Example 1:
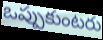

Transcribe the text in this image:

ఒప్పుకుంటరు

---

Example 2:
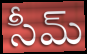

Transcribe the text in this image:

సీమ్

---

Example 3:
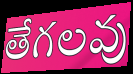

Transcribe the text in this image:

తేగలవు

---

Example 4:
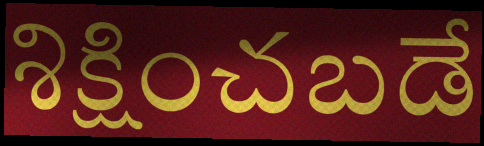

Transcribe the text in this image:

శిక్షించబడే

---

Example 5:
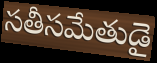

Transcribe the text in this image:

సతీసమేతుడై